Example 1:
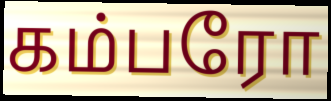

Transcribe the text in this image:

கம்பரோ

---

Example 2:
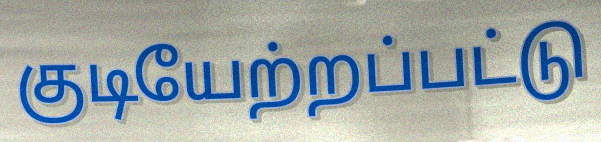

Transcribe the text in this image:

குடியேற்றப்பட்டு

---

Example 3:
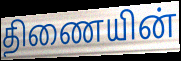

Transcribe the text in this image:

திணையின்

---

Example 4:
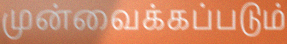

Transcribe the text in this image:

முன்வைக்கப்படும்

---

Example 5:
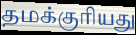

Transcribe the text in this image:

தமக்குரியது